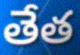
తేత